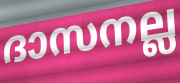
ദാസനല്ല